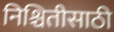
निश्चितीसाठी